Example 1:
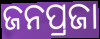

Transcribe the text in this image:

ଜନପ୍ରଜା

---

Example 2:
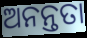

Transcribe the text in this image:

ଅନନ୍ତତା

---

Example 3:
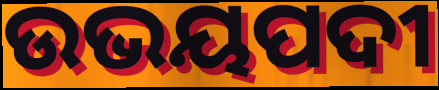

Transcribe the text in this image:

ଉଭୟପଦୀ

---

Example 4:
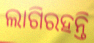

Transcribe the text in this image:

ଲାଗିରହନ୍ତି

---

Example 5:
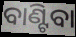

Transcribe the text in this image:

ବାଣ୍ଟିବା